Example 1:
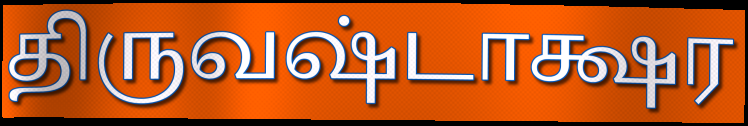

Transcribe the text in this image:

திருவஷ்டாக்ஷர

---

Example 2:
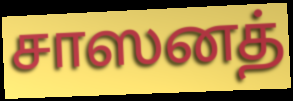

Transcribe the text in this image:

சாஸனத்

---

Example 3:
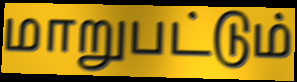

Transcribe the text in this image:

மாறுபட்டும்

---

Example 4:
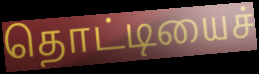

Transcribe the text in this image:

தொட்டியைச்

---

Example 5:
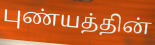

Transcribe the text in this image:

புண்யத்தின்